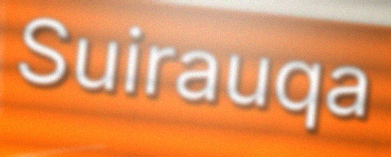
Suirauqa